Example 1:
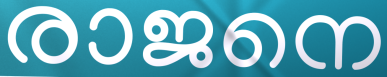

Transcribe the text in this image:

രാജനെ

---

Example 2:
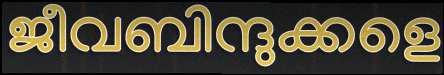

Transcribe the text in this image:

ജീവബിന്ദുക്കളെ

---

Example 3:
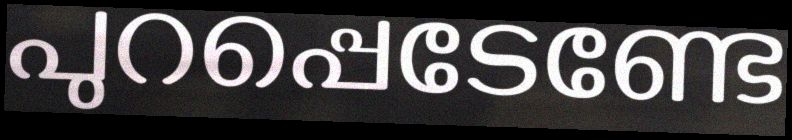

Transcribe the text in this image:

പുറപ്പെടേണ്ടേ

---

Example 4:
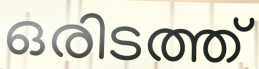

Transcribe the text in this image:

ഒരിടത്ത്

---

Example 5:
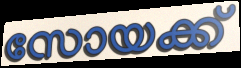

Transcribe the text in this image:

സോയക്ക്